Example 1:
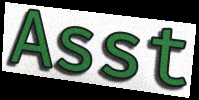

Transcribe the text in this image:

Asst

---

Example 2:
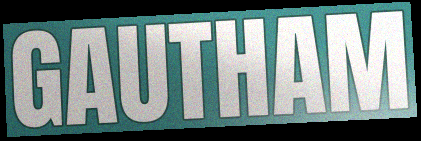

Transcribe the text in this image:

GAUTHAM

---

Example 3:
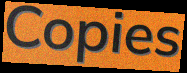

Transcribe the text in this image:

Copies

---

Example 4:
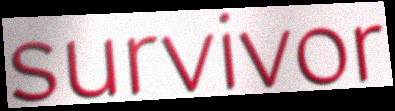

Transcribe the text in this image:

survivor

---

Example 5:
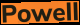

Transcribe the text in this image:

Powell